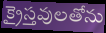
క్రైస్తవులతోను